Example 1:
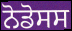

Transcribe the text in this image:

ਨੋਡੋਸਸ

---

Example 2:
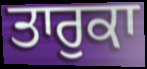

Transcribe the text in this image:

ਤਾਰੁਕਾ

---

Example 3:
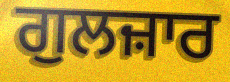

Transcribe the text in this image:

ਗੁਲਜ਼ਾਰ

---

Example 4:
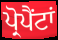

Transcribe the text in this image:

ਪ੍ਰੋਪੈਂਟਾਂ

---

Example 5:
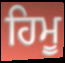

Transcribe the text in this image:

ਹਿਮੂ